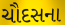
ચૌદસના